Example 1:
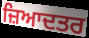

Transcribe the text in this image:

ਜ਼ਿਆਦਤਰ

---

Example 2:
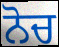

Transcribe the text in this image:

ਨੋਚ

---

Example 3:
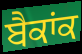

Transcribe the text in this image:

ਬੈਕਾਂਕ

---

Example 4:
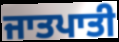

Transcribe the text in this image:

ਜਾਤਪਾਤੀ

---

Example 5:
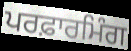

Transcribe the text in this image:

ਪਰਫ਼ਾਰਮਿੰਗ